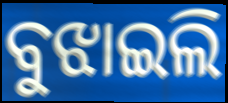
ବୁଝାଇଲି